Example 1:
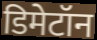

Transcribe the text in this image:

डिमेटॉन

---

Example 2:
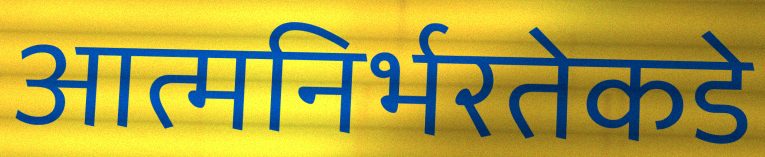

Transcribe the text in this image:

आत्मनिर्भरतेकडे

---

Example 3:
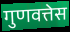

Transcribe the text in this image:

गुणवत्तेस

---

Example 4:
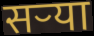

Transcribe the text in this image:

सऱ्या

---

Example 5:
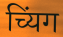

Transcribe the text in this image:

च्यिंग